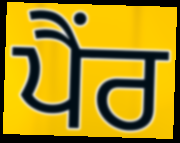
ਪੈਂਰ